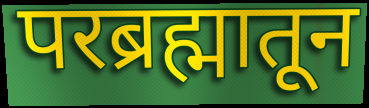
परब्रह्मातून